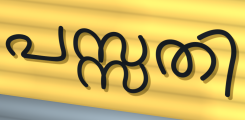
പസ്സതി